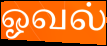
ஓவல்